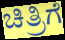
ಚಿತ್ರಿಗೆ